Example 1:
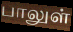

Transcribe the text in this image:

பாலுள்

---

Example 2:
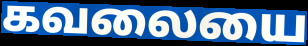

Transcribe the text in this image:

கவலையை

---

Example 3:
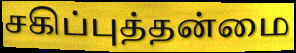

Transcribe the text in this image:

சகிப்புத்தன்மை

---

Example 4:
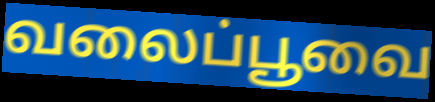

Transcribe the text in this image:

வலைப்பூவை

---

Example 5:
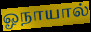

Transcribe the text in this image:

ஓநாயால்